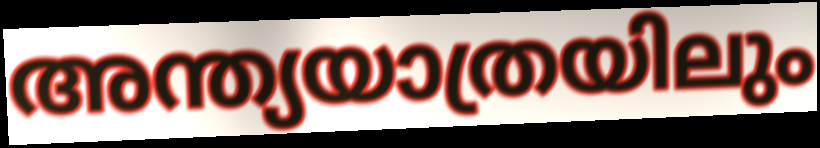
അന്ത്യയാത്രയിലും